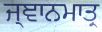
ਜ੍ਞਾਨਮਾਤ੍ਰ